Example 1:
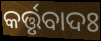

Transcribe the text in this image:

କର୍ତ୍ତୃବାଦଃ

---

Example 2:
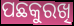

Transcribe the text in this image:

ପଛକୁରଖି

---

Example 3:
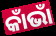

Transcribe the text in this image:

କାଁଭାଁ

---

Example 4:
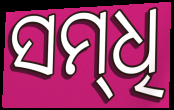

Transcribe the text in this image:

ସମ୍‌ଧି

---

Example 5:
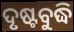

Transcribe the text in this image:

ଦୃଷ୍ଟବୁଦ୍ଧି